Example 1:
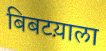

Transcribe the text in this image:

बिबटय़ाला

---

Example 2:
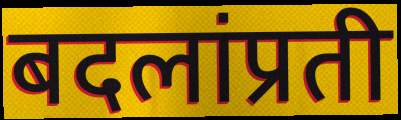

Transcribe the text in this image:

बदलांप्रती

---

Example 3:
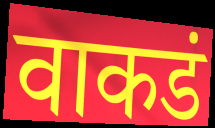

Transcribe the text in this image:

वाकडं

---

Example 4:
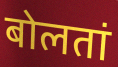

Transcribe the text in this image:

बोलतां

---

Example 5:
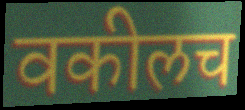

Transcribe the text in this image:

वकीलच